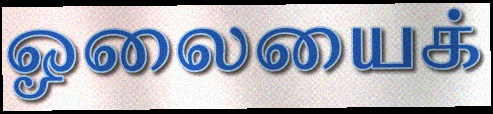
ஓலையைக்